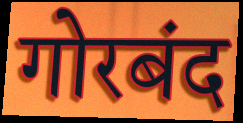
गोरबंद